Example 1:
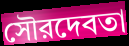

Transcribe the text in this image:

সৌরদেবতা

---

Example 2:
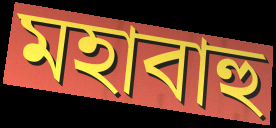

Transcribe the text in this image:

মহাবাহু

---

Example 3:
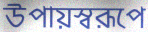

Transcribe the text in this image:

উপায়স্বরূপে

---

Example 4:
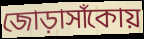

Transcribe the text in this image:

জোড়াসাঁকোয়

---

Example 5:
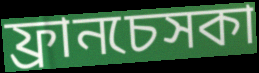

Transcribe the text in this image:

ফ্রানচেসকা